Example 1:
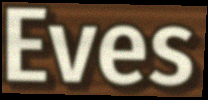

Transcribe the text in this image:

Eves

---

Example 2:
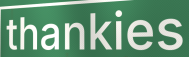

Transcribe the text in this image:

thankies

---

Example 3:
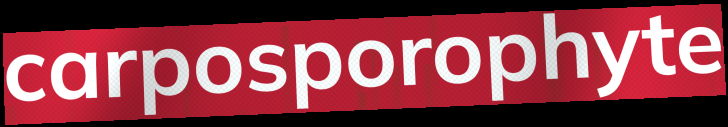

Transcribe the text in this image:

carposporophyte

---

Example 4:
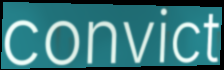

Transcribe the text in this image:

convict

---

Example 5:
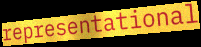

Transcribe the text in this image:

representational